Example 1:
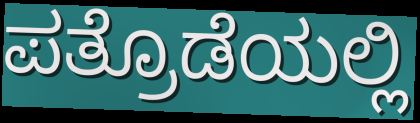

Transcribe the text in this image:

ಪತ್ರೊಡೆಯಲ್ಲಿ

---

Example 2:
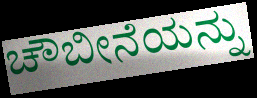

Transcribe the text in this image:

ಚೌಬೀನೆಯನ್ನು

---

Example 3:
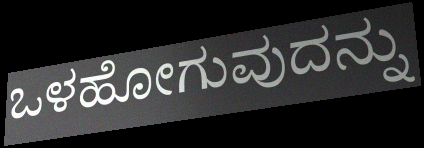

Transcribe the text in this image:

ಒಳಹೋಗುವುದನ್ನು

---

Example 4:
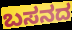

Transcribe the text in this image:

ಬಸನದ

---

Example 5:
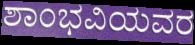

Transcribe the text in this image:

ಶಾಂಭವಿಯವರ